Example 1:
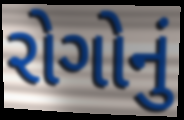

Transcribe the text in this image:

રોગોનું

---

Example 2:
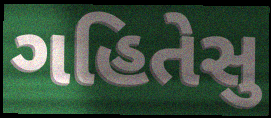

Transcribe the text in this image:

ગહિતેસુ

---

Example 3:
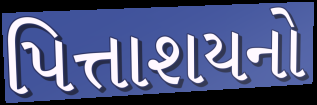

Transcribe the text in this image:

પિત્તાશયનો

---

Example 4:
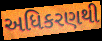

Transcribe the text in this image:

અધિકરણથી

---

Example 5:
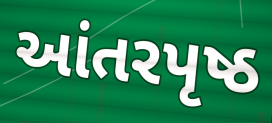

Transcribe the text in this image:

આંતરપૃષ્ઠ